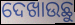
ଦେଖାଉଛୁ